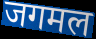
जगमल